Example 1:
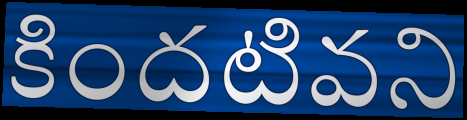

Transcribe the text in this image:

కిందటివని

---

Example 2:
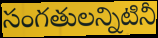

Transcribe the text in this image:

సంగతులన్నిటినీ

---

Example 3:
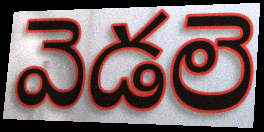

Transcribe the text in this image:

వెడలె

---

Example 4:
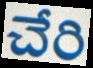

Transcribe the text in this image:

చేరి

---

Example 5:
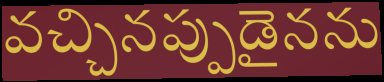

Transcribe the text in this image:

వచ్చినప్పుడైనను